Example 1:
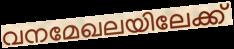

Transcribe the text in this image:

വനമേഖലയിലേക്ക്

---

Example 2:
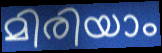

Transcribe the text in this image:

മിരിയാം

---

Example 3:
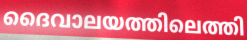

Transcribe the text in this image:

ദൈവാലയത്തിലെത്തി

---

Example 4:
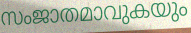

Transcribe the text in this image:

സംജാതമാവുകയും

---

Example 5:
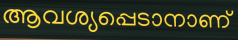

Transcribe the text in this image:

ആവശ്യപ്പെടാനാണ്